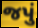
જપું